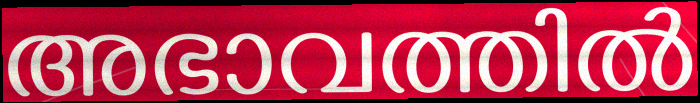
അഭാവത്തിൽ